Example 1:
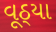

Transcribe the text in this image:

વૂઠ્યા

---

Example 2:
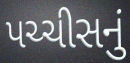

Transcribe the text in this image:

પચ્ચીસનું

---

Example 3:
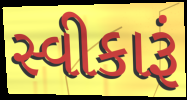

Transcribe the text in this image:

સ્વીકારૂં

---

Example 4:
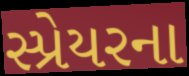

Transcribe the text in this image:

સ્પ્રેયરના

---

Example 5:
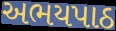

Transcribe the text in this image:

અભયપાઠ